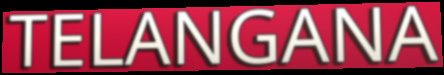
TELANGANA